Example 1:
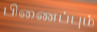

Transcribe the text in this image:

பிணைப்பும்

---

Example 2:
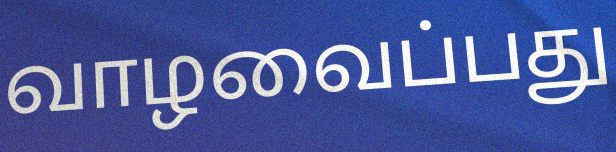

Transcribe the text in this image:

வாழவைப்பது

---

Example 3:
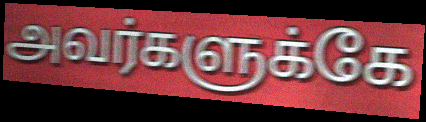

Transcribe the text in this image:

அவர்களுக்கே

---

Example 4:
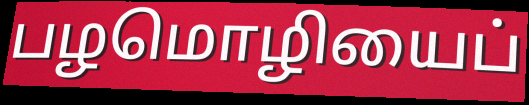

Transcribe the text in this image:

பழமொழியைப்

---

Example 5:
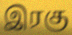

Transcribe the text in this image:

இரகு